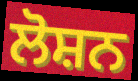
ਲੋਸ਼ਨ